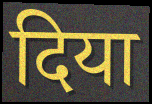
दिया